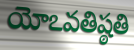
యోఽవతిష్ఠతి